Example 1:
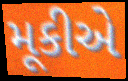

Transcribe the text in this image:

મૂકીએ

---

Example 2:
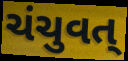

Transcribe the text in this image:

ચંચુવત્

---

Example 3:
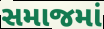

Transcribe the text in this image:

સમાજમાં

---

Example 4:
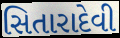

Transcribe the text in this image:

સિતારાદેવી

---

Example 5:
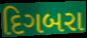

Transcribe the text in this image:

દિગબરા